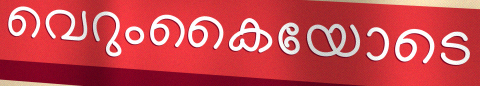
വെറുംകൈയോടെ